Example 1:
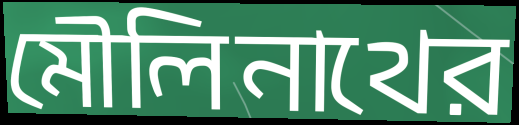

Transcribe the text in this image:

মৌলিনাথের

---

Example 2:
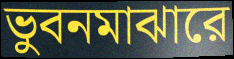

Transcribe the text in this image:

ভুবনমাঝারে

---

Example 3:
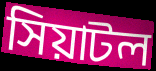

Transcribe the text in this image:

সিয়াটল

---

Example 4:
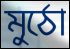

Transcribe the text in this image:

মুঠো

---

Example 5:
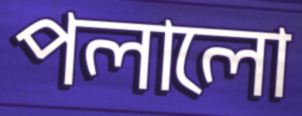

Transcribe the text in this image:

পলালো